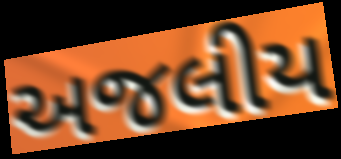
અજલીય